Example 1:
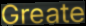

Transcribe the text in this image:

Greate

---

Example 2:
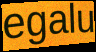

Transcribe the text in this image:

egalu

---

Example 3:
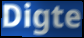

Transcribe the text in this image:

Digte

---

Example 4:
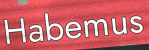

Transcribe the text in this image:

Habemus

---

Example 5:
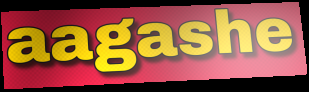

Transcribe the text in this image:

aagashe